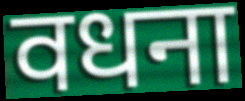
वधना